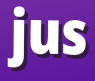
jus